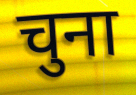
चुना